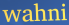
wahni